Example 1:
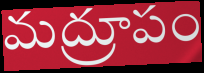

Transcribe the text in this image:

మద్రూపం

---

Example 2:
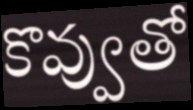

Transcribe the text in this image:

కొవ్వుతో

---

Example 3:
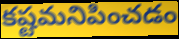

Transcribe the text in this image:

కష్టమనిపించడం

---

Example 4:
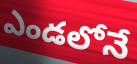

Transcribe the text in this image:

ఎండలోనే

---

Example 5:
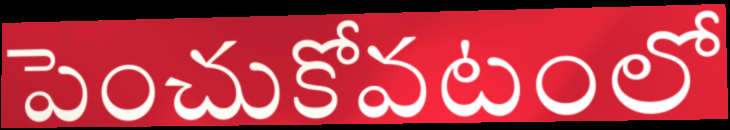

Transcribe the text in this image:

పెంచుకోవటంలో